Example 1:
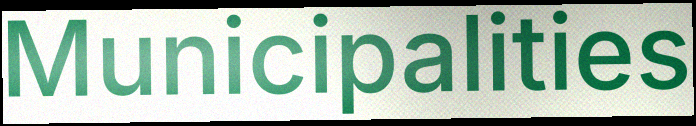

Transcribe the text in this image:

Municipalities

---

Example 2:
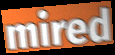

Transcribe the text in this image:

mired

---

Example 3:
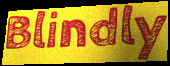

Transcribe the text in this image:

Blindly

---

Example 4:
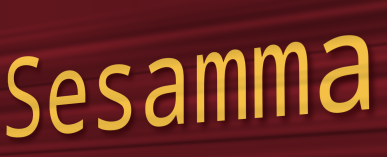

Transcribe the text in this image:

Sesamma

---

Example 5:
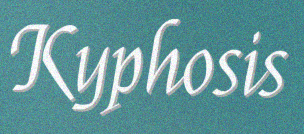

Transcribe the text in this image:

Kyphosis